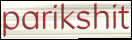
parikshit